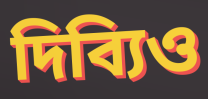
দিব্যিও